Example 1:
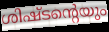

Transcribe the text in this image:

ശിഷ്ടന്റെയും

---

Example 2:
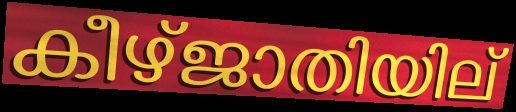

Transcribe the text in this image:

കീഴ്ജാതിയില്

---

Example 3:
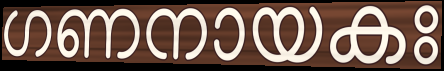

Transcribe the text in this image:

ഗണനായകഃ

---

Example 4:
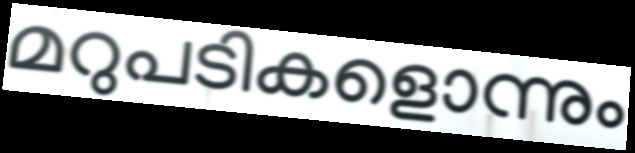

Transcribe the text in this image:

മറുപടികളൊന്നും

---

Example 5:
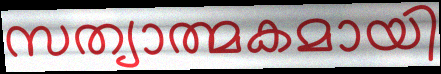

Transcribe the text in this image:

സത്യാത്മകമായി